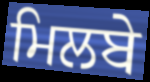
ਮਿਲਬੇ